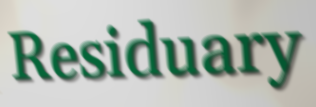
Residuary